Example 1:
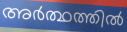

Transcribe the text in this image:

അർത്ഥത്തിൽ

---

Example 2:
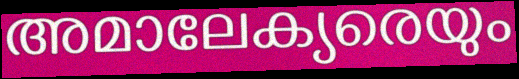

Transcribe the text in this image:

അമാലേക്യരെയും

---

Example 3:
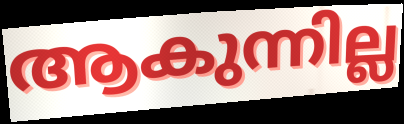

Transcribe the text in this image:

ആകുന്നില്ല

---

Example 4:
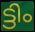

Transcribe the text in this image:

ട്ടിം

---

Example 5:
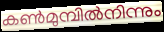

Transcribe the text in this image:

കൺമുമ്പിൽനിന്നും